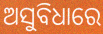
ଅସୁବିଧାରେ